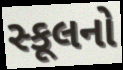
સ્કૂલનો